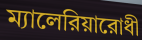
ম্যালেরিয়ারোধী